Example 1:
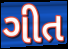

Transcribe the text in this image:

ગીત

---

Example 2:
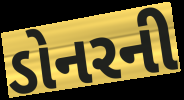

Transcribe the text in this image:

ડોનરની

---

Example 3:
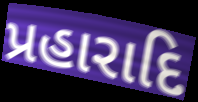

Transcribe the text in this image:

પ્રહારાદિ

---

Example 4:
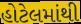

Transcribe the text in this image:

હોટેલમાંથી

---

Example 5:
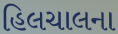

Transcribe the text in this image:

હિલચાલના